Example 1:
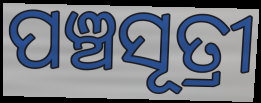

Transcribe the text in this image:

ପଞ୍ଚସୂତ୍ରୀ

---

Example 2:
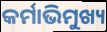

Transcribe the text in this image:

କର୍ମାଭିମୁଖ୍ୟ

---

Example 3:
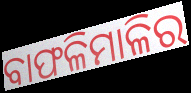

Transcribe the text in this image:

ବାଫଳିମାଳିର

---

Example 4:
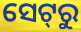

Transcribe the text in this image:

ସେଟ୍‌ରୁ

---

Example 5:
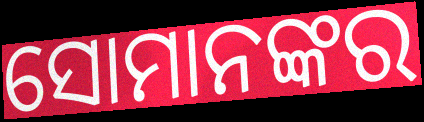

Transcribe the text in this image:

ସୋମାନଙ୍କର